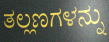
ತಲ್ಲಣಗಳನ್ನು